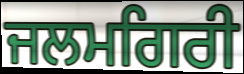
ਜਲਮਗਿਰੀ